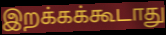
இறக்கக்கூடாது